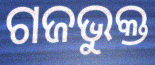
ଗଜଭୁକ୍ତ